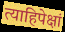
त्याहिपेक्षां